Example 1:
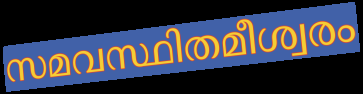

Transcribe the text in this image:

സമവസ്ഥിതമീശ്വരം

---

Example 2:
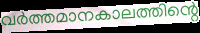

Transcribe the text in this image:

വർത്തമാനകാലത്തിന്റെ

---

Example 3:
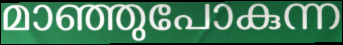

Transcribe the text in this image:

മാഞ്ഞുപോകുന്ന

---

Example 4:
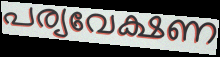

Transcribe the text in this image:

പര്യവേക്ഷണ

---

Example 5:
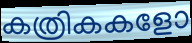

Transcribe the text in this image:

കത്രികകളോ